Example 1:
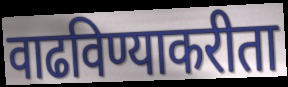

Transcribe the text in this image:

वाढविण्याकरीता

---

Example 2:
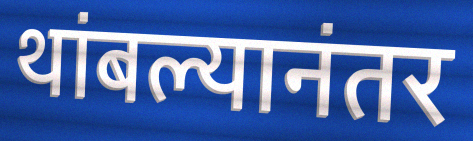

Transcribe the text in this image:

थांबल्यानंतर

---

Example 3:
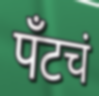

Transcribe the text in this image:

पँटचं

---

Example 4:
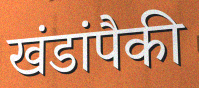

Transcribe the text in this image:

खंडांपैकी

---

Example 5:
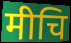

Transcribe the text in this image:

मीचि